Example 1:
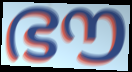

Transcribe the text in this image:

ഭൗ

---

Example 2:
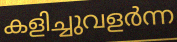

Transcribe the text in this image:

കളിച്ചുവളർന്ന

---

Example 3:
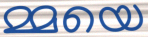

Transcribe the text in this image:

മ്മയെ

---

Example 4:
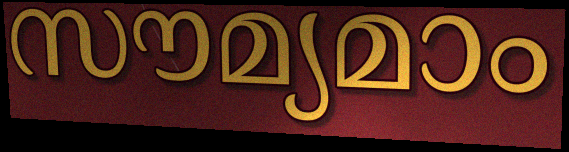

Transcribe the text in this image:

സൗമ്യമാം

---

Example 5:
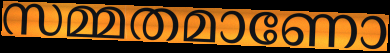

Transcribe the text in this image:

സമ്മതമാണോ